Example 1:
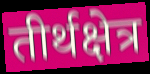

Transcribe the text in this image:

तीर्थक्षेत्र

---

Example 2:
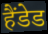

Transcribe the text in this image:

हैंडेड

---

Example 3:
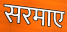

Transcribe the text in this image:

सरमाए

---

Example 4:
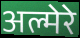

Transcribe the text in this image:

अल्मेरे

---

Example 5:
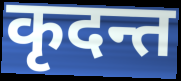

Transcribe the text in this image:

कृदन्त